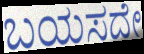
ಬಯಸದೇ